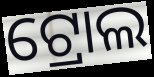
ଟ୍ରୋଲ